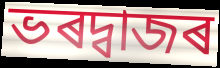
ভৰদ্বাজৰ